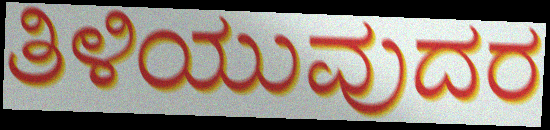
ತಿಳಿಯುವುದರ